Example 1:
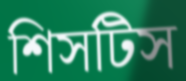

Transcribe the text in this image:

শিসটিস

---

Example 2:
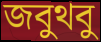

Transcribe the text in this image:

জবুথবু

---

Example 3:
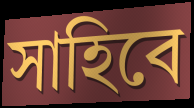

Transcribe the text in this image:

সাহিবে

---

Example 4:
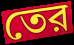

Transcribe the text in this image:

তের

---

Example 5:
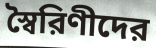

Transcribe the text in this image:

স্বৈরিণীদের